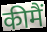
कीमैं